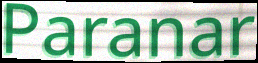
Paranar